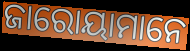
ଜାରୋୟାମାନେ